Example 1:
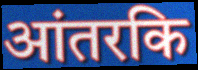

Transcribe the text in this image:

आंतरकि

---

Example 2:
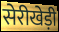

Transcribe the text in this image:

सेरीखेड़ी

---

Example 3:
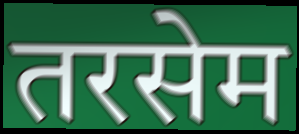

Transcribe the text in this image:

तरसेम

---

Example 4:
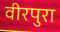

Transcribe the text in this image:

वीरपुरा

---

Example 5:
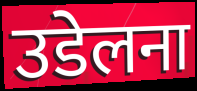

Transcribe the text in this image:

उडेलना